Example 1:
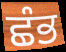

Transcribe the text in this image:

ਛੰਭ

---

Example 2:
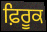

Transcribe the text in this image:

ਫ਼ਿਰੂਕ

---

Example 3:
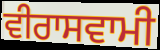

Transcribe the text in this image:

ਵੀਰਾਸਵਾਮੀ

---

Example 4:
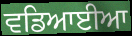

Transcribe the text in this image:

ਵਡਿਆਈਆ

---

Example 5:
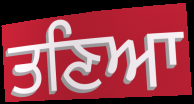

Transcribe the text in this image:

ਤਣਿਆ